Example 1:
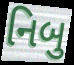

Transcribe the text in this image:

નિબુ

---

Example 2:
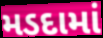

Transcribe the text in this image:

મડદામાં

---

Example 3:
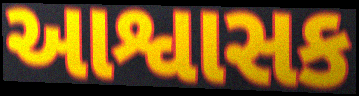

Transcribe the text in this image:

આશ્વાસક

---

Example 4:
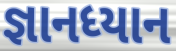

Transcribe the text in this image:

જ્ઞાનધ્યાન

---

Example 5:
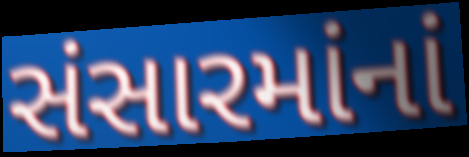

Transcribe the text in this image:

સંસારમાંનાં